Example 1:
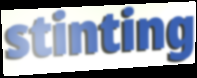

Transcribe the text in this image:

stinting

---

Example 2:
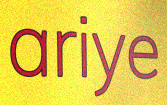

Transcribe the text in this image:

ariye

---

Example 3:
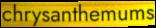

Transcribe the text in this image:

chrysanthemums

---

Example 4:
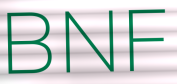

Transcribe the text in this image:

BNF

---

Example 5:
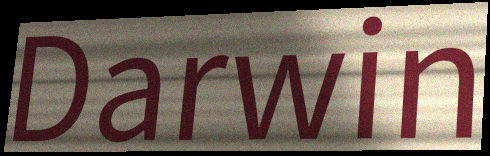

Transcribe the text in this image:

Darwin